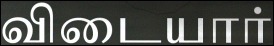
விடையார்